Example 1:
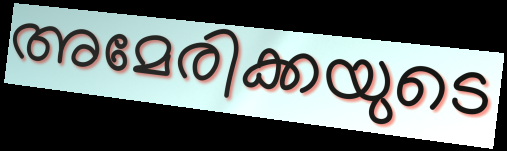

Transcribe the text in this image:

അമേരിക്കയുടെ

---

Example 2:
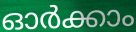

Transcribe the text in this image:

ഓർക്കാം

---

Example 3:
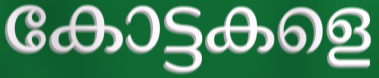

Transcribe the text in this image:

കോട്ടകളെ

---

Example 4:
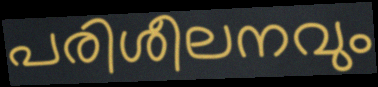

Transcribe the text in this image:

പരിശീലനവും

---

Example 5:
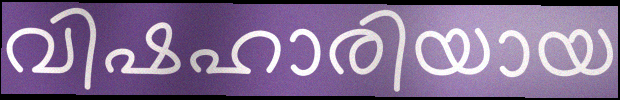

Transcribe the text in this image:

വിഷഹാരിയായ